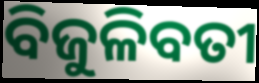
ବିଜୁଳିବତୀ